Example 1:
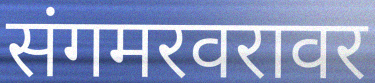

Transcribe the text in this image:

संगमरवरावर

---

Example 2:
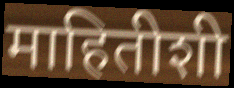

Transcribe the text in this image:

माहितीशी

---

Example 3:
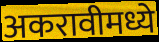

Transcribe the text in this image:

अकरावीमध्ये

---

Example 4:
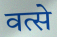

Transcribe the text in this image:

वत्से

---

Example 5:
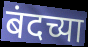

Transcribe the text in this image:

बंदच्या